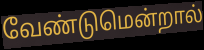
வேண்டுமென்றால்